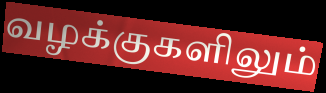
வழக்குகளிலும்